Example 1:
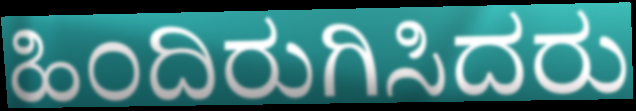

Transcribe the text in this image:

ಹಿಂದಿರುಗಿಸಿದರು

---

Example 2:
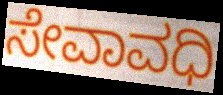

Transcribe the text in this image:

ಸೇವಾವಧಿ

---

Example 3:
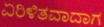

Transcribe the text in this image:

ಏರಿಳಿತವಾದಾಗ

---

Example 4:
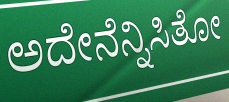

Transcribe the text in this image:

ಅದೇನೆನ್ನಿಸಿತೋ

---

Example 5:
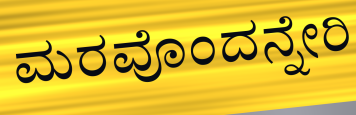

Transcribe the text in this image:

ಮರವೊಂದನ್ನೇರಿ